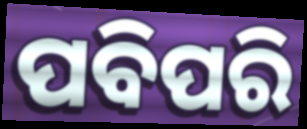
ପବିପରି